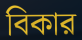
বিকার